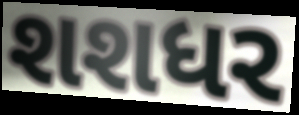
શશધર